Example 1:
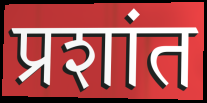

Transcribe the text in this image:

प्रशांत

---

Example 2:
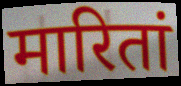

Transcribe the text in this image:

मारितां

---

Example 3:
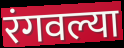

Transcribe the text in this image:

रंगवल्या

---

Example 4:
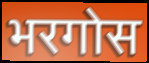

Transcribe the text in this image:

भरगोस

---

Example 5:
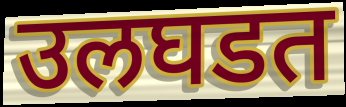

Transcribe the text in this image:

उलघडत